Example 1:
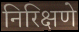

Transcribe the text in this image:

निरिक्षणे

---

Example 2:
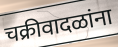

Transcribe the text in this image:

चक्रीवादळांना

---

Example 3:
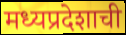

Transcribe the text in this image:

मध्यप्रदेशाची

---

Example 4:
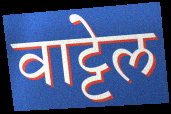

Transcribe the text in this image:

वाट्टेल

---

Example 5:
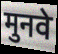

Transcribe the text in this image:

मुनवे